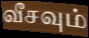
வீசவும்